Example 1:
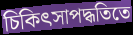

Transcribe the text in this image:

চিকিৎসাপদ্ধতিতে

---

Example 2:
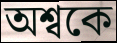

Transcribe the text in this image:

অশ্বকে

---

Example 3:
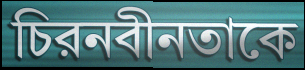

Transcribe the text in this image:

চিরনবীনতাকে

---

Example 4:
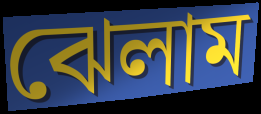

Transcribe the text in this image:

ঝেলাম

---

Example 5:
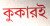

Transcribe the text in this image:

কুকারই